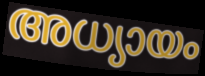
അധ്യായം